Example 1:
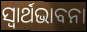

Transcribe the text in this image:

ସ୍ଵାର୍ଥଭାବନା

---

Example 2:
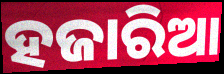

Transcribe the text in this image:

ହଜାରିଆ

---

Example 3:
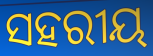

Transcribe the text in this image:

ସହରୀୟ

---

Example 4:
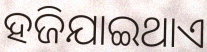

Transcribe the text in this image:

ହଜିଯାଇଥାଏ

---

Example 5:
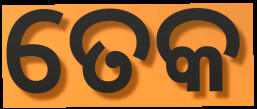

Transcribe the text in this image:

ତେକ